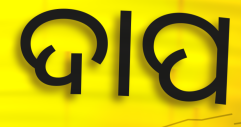
ଦାପ